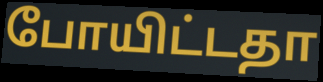
போயிட்டதா